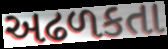
અઢળકતા